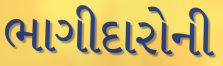
ભાગીદારોની